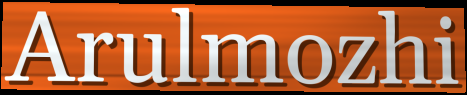
Arulmozhi